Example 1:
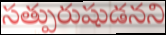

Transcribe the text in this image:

సత్పురుషుడనని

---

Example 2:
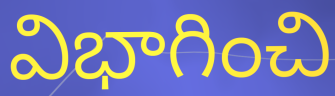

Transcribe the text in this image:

విభాగించి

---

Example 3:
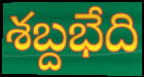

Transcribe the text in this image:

శబ్దభేది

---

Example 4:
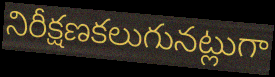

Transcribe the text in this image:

నిరీక్షణకలుగునట్లుగా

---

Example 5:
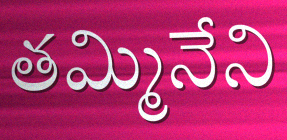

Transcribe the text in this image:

తమ్మినేని